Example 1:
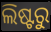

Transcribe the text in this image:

ଲିଷ୍ଟରୁ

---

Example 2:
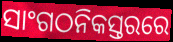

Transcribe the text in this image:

ସାଂଗଠନିକସ୍ତରରେ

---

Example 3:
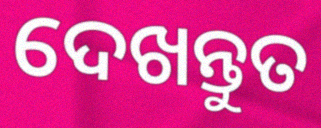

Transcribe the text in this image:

ଦେଖନ୍ତୁତ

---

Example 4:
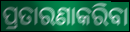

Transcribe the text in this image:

ପ୍ରତାରଣାକରିବା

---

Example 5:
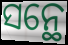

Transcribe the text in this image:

ସନ୍ଥେ